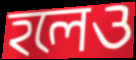
হলেও